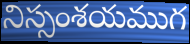
నిస్సంశయముగ